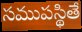
సముపస్థితే